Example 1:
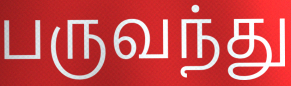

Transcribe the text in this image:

பருவந்து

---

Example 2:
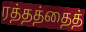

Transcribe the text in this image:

ரத்தத்தைத்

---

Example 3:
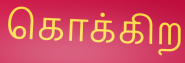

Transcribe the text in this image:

கொக்கிற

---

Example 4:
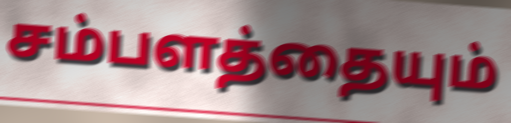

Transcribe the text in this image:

சம்பளத்தையும்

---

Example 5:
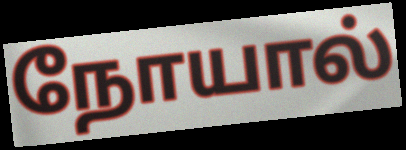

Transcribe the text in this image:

நோயால்